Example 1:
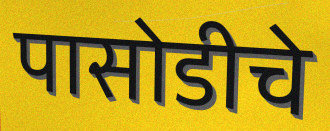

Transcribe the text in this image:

पासोडीचे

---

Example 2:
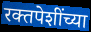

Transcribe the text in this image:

रक्तपेशींच्या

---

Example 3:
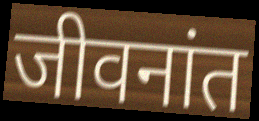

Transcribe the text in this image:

जीवनांत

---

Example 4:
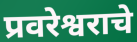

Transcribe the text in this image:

प्रवरेश्वराचे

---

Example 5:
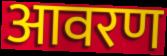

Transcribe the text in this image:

आवरण